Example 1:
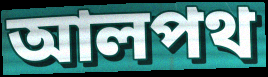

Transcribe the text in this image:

আলপথ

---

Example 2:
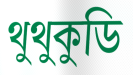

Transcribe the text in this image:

থুথুকুডি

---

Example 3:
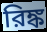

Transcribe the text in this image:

রিঙ্ক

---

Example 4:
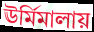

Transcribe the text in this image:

ঊর্মিমালায়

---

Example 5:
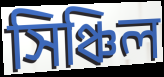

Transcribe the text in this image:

সিঞ্চিল